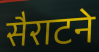
सैराटने